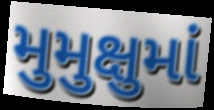
મુમુક્ષુમાં